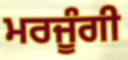
ਮਰਜੂੰਗੀ